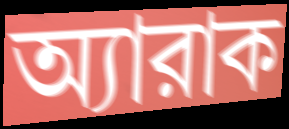
অ্যারাক